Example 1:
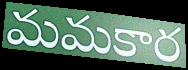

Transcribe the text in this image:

మమకార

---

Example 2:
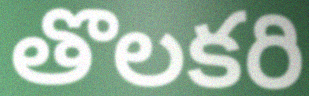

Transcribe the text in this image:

తొలకరి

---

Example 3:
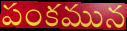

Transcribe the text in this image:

పంకమున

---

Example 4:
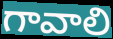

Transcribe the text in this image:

గావాలి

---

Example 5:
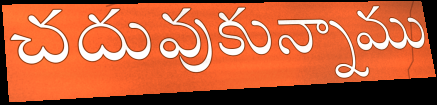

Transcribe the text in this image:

చదువుకున్నాము